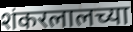
शंकरलालच्या